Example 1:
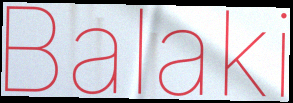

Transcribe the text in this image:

Balaki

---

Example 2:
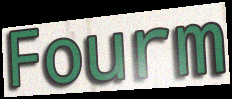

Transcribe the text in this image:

Fourm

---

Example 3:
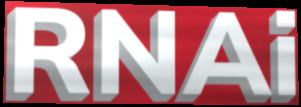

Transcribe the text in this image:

RNAi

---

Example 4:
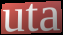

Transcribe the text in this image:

uta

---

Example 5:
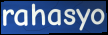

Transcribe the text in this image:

rahasyo